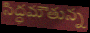
సిద్ధమౌతున్న